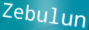
Zebulun